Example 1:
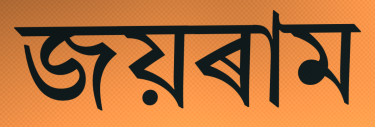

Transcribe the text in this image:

জয়ৰাম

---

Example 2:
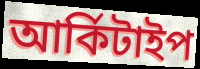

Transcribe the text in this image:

আৰ্কিটাইপ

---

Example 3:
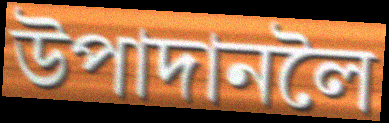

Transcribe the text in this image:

উপাদানলৈ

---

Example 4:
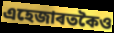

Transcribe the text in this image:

এহেজাৰতকৈও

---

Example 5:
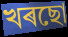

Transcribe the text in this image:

খৰছো